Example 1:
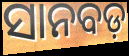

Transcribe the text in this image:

ସାନବଡ଼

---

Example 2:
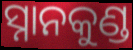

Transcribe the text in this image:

ସ୍ନାନକୁଣ୍ଡ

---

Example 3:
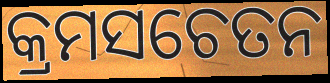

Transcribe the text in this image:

କ୍ରମସଚେତନ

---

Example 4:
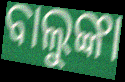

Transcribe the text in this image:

ବାଲୁଙ୍କା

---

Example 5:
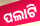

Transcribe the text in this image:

ପଲାଟି